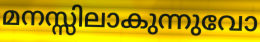
മനസ്സിലാകുന്നുവോ